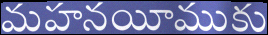
మహనయీముకు